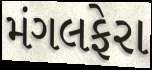
મંગલફેરા